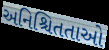
અનિશ્ચિતતાઓ